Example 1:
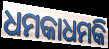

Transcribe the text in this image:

ଧମକାଧମକି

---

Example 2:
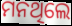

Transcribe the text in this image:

ମନଥିଲେ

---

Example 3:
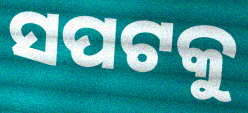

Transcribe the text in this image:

ସପଟକୁ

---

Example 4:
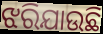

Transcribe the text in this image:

ଝରିଯାଉଛି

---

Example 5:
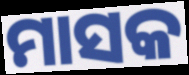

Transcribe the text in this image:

ମାସକ